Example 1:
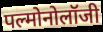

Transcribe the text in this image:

पल्मोनोलॉजी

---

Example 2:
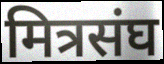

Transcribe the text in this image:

मित्रसंघ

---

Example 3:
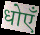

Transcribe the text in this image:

धोएँ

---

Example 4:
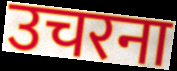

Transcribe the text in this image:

उचरना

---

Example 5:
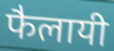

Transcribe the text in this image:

फैलायी